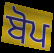
ਬੋਪ